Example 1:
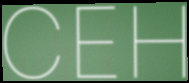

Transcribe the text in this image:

CEH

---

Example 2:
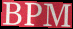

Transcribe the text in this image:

BPM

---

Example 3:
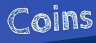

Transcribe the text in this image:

Coins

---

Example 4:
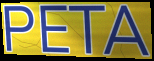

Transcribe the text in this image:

PETA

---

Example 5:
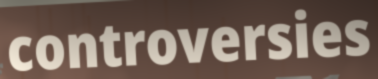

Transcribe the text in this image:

controversies